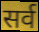
सर्व